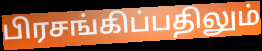
பிரசங்கிப்பதிலும்